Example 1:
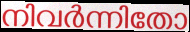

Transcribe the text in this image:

നിവർന്നിതോ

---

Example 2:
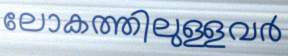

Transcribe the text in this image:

ലോകത്തിലുള്ളവർ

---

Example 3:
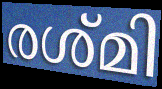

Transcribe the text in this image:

രശ്മി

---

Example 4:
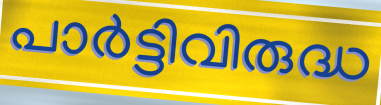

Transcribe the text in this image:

പാർട്ടിവിരുദ്ധ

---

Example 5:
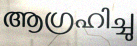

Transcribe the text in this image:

ആഗ്രഹിച്ചു